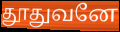
தூதுவனே